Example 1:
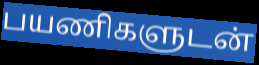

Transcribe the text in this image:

பயணிகளுடன்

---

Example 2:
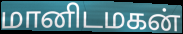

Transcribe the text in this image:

மானிடமகன்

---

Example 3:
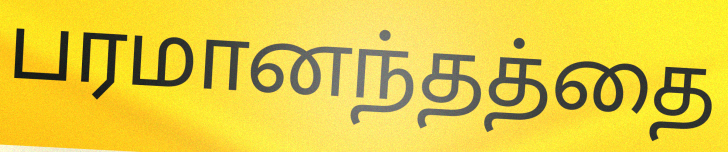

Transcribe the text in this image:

பரமானந்தத்தை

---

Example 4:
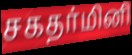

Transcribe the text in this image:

சகதர்மினி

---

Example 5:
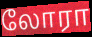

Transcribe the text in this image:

லோரா